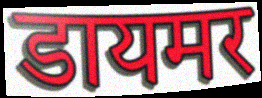
डायमर